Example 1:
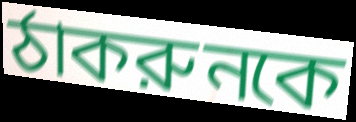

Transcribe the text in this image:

ঠাকরুনকে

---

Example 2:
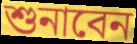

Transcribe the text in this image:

শুনাবেন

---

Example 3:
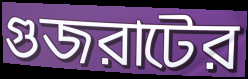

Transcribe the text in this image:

গুজরাটের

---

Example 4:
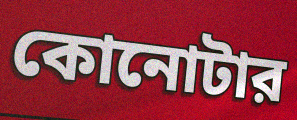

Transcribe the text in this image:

কোনোটার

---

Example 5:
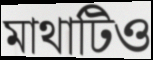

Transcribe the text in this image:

মাথাটিও